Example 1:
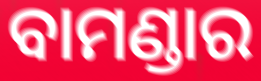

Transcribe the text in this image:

ବାମଣ୍ଡାର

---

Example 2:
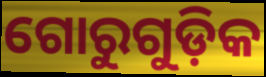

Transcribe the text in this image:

ଗୋରୁଗୁଡ଼ିକ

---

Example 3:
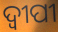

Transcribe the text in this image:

ଦ୍ୱୀପୀ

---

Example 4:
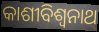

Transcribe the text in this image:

କାଶୀବିଶ୍ୱନାଥ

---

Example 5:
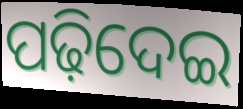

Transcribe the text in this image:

ପଢ଼ିଦେଇ